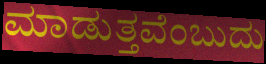
ಮಾಡುತ್ತವೆಂಬುದು